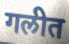
गलीत